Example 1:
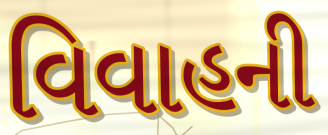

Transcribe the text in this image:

વિવાહની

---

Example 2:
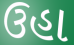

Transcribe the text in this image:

ઉહા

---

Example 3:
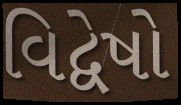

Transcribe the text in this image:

વિદ્વેષો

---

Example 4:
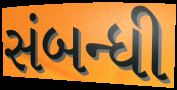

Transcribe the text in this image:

સંબન્ધી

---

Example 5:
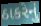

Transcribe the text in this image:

ઠાકરેનું